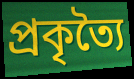
প্রকৃত্যৈ